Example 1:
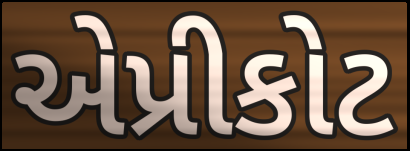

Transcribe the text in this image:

એપ્રીકોટ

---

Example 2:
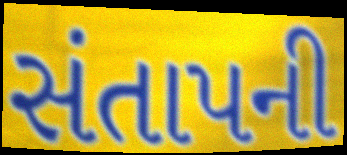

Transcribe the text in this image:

સંતાપની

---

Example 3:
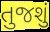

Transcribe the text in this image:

તુજશું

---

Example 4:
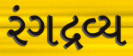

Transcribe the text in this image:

રંગદ્રવ્ય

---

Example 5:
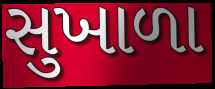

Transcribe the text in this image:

સુખાળા